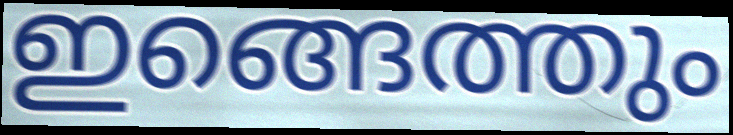
ഇങ്ങെത്തും